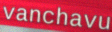
vanchavu